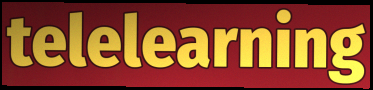
telelearning